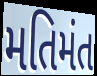
મતિમંત